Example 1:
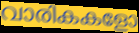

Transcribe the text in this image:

വാരികകളോ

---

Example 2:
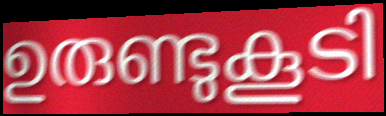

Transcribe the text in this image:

ഉരുണ്ടുകൂടി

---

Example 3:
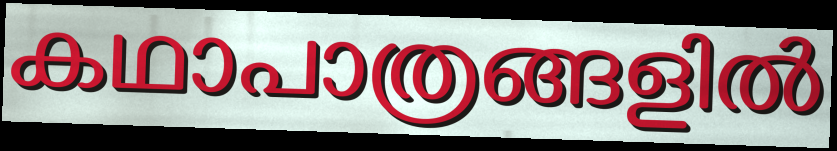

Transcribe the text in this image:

കഥാപാത്രങ്ങളിൽ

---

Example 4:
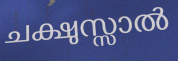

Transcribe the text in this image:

ചക്ഷുസ്സാൽ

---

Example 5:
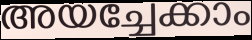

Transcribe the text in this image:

അയച്ചേക്കാം